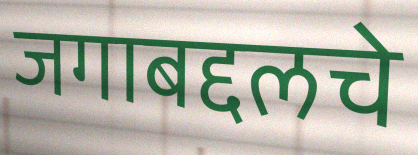
जगाबद्दलचे